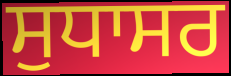
ਸੁਧਾਸਰ